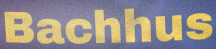
Bachhus